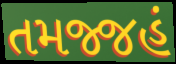
તમજ્જહં